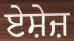
ਏਸ਼ੇਜ਼